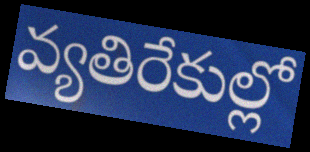
వ్యతిరేకుల్లో